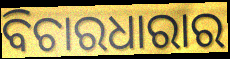
ବିଚାରଧାରାର